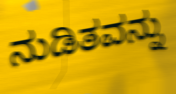
ನುಡಿತವನ್ನು